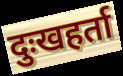
दुःखहर्ता